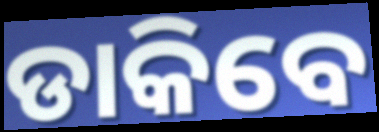
ଡାକିବେ